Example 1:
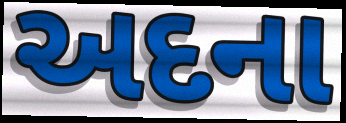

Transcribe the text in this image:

અદના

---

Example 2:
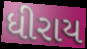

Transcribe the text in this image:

ધીરાય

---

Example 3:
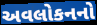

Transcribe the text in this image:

અવલોકનનો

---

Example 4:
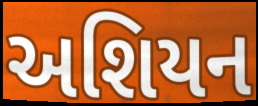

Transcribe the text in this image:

અશિયન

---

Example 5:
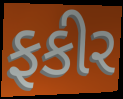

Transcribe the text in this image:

ફકીર